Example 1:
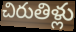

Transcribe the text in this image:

చిరుతిళ్లు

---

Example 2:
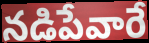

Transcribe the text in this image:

నడిపేవారే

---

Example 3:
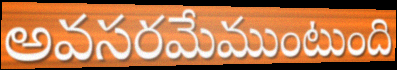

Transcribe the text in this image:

అవసరమేముంటుంది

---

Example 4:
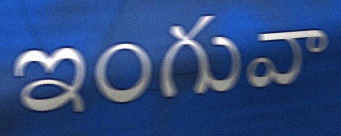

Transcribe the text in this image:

ఇంగువా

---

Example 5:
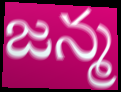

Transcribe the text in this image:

జన్మ